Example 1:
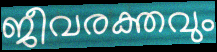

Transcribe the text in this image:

ജീവരക്തവും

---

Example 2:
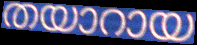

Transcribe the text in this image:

തയാറായ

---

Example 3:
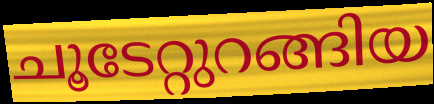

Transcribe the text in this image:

ചൂടേറ്റുറങ്ങിയ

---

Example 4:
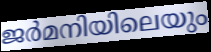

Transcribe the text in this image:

ജർമനിയിലെയും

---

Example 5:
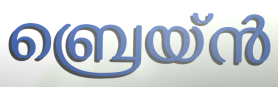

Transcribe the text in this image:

ബ്രെയ്ൻ